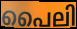
പൈലി